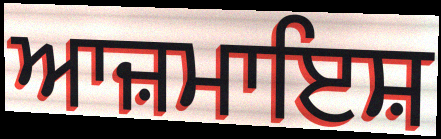
ਆਜ਼ਮਾਇਸ਼